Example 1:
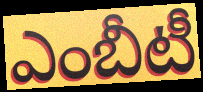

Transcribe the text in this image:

ఎంబీటీ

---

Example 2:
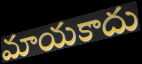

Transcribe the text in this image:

మాయకాదు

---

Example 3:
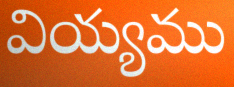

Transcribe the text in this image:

వియ్యము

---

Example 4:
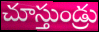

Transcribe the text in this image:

చూస్తుండ్రు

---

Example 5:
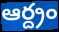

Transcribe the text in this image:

ఆర్ద్రం